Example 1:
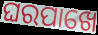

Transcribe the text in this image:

ଘରପାଖେ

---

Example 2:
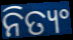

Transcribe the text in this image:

ନିତ୍ୟଂ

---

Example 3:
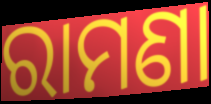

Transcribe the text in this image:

ରାମଣା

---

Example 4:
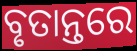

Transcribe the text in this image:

ବୃତାନ୍ତରେ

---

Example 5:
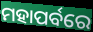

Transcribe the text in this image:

ମହାପର୍ବରେ